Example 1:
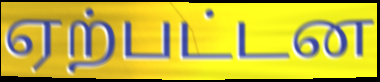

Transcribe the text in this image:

ஏற்பட்டன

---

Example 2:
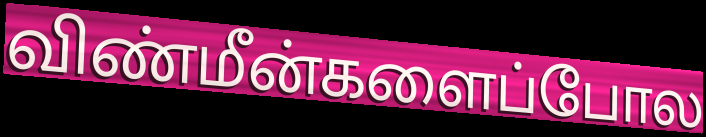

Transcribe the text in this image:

விண்மீன்களைப்போல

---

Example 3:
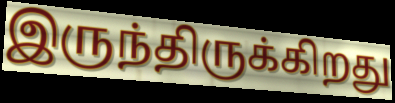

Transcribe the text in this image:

இருந்திருக்கிறது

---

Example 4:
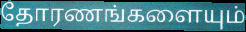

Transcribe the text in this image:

தோரணங்களையும்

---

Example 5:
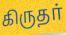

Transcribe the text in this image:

கிருதர்